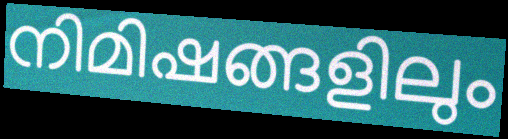
നിമിഷങ്ങളിലും